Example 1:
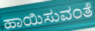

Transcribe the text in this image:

ಹಾಯಿಸುವಂತೆ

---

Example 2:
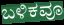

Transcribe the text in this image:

ಬಳಿಕವೂ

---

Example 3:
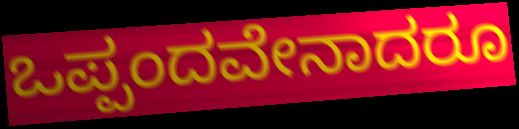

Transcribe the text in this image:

ಒಪ್ಪಂದವೇನಾದರೂ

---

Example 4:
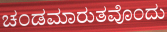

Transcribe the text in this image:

ಚಂಡಮಾರುತವೊಂದು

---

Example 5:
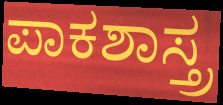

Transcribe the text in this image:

ಪಾಕಶಾಸ್ತ್ರ